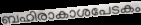
ബഹിരാകാശപേടകം